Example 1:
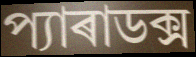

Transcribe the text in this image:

প্যাৰাডক্স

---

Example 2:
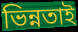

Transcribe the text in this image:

ভিন্নতাই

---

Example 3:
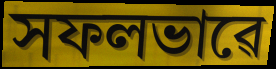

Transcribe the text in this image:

সফলভাৱে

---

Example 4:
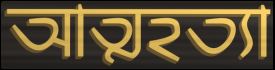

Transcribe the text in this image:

আত্মহত্যা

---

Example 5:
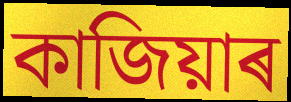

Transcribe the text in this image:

কাজিয়াৰ